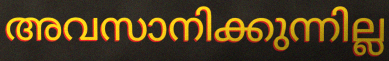
അവസാനിക്കുന്നില്ല